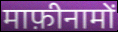
माफ़ीनामों